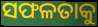
ସଫଳତାକୁ